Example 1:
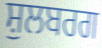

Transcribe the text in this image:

ਸ਼ੁਲਬਰਗ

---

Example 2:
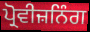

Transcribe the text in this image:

ਪ੍ਰੋਵੀਜ਼ਨਿੰਗ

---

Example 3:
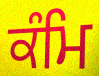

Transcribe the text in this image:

ਕੰਮਿ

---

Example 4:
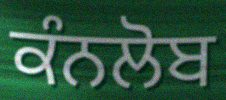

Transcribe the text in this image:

ਕੰਨਲੋਬ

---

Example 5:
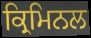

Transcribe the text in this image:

ਕ੍ਰਿਮਿਨਲ